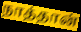
நாத்தான்